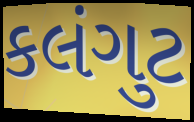
કલંગુટ